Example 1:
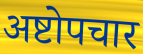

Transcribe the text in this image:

अष्टोपचार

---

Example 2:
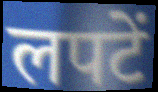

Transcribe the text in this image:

लपटें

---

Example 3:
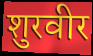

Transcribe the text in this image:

शुरवीर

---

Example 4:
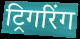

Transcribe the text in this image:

ट्रिगरिंग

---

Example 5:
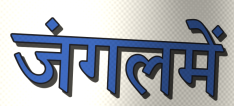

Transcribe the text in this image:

जंगलमें